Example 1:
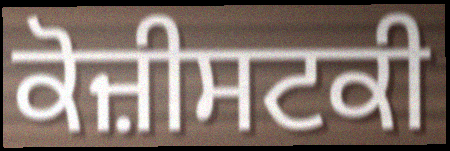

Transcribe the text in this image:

ਕੋਜ਼ੀਸਟਕੀ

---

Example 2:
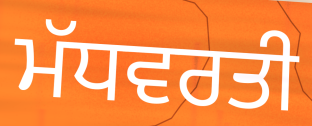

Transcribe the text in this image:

ਮੱਧਵਰਤੀ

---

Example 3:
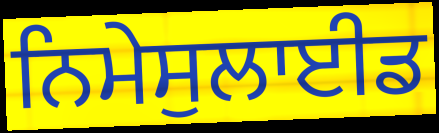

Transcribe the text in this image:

ਨਿਮੇਸੁਲਾਈਡ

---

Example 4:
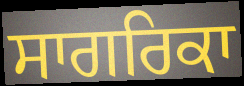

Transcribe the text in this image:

ਸਾਗਰਿਕਾ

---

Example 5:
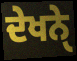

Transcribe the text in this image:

ਦੇਖਨੑੇ